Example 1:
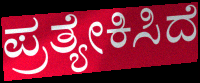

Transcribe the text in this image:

ಪ್ರತ್ಯೇಕಿಸಿದೆ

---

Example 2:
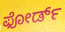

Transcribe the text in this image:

ಫೋರ್ಡ್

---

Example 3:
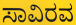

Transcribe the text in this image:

ಸಾವಿರವ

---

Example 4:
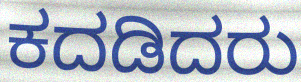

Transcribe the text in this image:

ಕದಡಿದರು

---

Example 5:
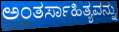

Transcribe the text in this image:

ಅಂತರ್ಸಾಹಿತ್ಯವನ್ನು